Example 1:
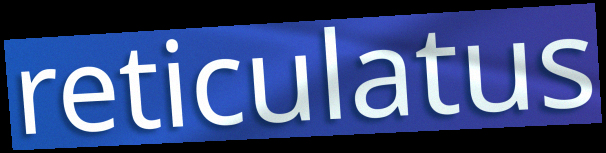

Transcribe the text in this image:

reticulatus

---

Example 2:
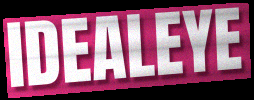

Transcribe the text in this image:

IDEALEYE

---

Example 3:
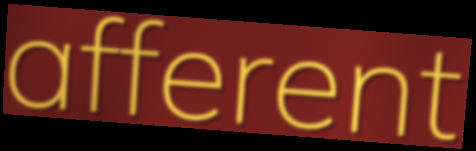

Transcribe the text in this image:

afferent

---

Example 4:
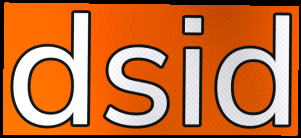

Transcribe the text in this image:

dsid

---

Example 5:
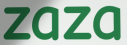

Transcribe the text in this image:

zaza